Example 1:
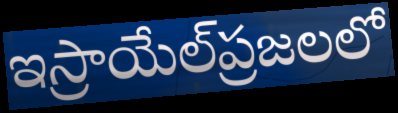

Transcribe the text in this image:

ఇస్రాయేల్‌ప్రజలలో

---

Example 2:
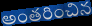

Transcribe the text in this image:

అంతరించిన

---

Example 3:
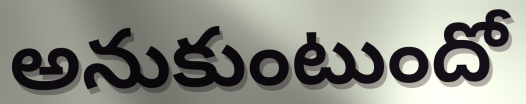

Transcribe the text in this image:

అనుకుంటుందో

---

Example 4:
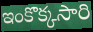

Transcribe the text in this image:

ఇంకొక్కసారి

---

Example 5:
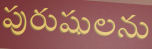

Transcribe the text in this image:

పురుషులను